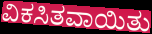
ವಿಕಸಿತವಾಯಿತು